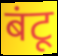
बंटू